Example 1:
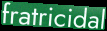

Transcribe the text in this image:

fratricidal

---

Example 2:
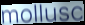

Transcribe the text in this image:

mollusc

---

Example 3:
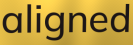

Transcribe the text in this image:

aligned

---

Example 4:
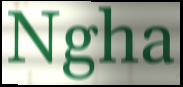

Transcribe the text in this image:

Ngha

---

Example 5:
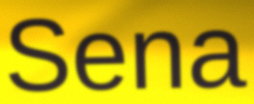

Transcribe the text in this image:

Sena